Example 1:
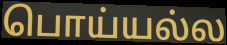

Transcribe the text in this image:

பொய்யல்ல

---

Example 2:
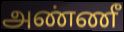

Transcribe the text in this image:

அண்ணீ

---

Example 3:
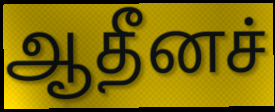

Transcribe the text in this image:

ஆதீனச்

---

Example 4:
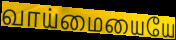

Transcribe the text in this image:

வாய்மையையே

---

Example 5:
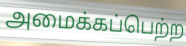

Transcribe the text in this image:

அமைக்கப்பெற்ற